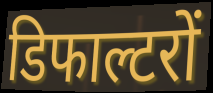
डिफाल्टरों